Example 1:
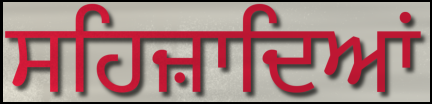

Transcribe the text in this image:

ਸਹਿਜ਼ਾਦਿਆਂ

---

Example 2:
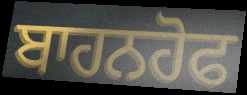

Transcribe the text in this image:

ਬਾਹਨਹੋਫ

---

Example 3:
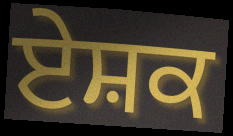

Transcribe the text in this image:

ਏਸ਼ਕ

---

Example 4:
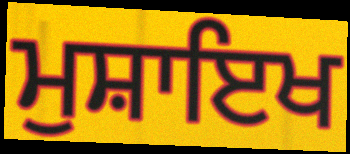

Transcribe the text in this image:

ਮੁਸ਼ਾਇਖ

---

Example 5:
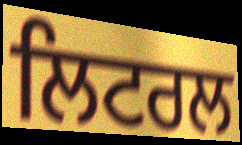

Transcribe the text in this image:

ਲਿਟਰਲ